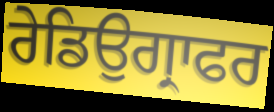
ਰੇਡਿਉਗ੍ਰਾਫਰ